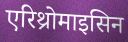
एरिथ्रोमाइसिन